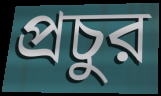
প্রচুর